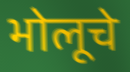
भोलूचे